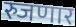
रुजणार